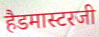
हैडमास्टरजी